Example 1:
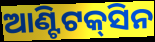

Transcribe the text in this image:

ଆଣ୍ଟିଟକ୍‌ସିନ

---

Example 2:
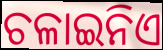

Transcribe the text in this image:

ଚଳାଇନିଏ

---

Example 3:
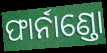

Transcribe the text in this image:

ଫାର୍ନାଣ୍ଡୋ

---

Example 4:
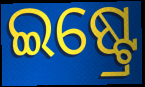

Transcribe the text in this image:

ଇଷ୍ଟ୍ରେ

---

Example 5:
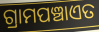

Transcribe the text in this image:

ଗ୍ରାମପଞ୍ଚାଏତ